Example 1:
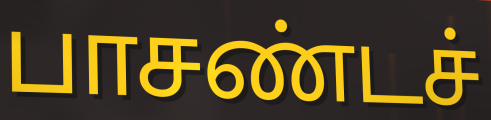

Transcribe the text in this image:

பாசண்டச்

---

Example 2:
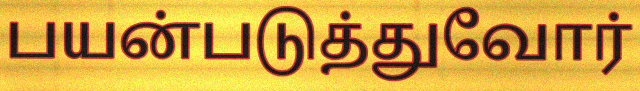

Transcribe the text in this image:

பயன்படுத்துவோர்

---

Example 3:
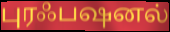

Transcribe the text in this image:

புரஃபஷனல்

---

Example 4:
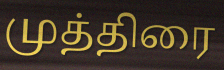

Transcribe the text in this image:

முத்திரை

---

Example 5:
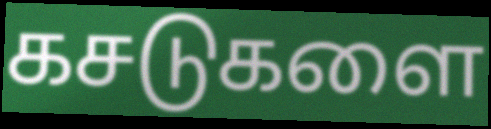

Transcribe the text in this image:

கசடுகளை